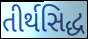
તીર્થસિદ્ધ